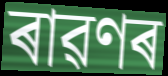
ৰাৱণৰ